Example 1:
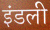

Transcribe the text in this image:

इंडली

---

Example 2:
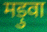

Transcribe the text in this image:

मड़ुवा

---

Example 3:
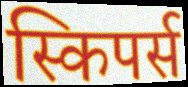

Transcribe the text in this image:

स्किपर्स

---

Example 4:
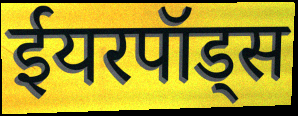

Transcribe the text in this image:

ईयरपॉड्स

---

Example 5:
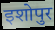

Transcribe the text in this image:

इशोपुर